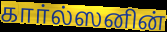
கார்ல்ஸனின்